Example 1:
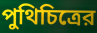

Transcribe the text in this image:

পুথিচিত্রের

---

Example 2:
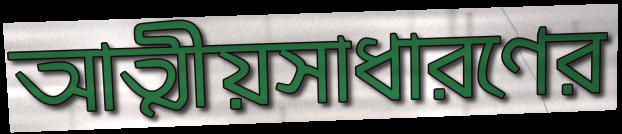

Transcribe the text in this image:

আত্মীয়সাধারণের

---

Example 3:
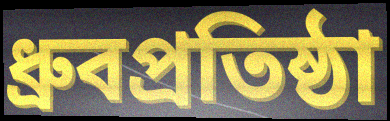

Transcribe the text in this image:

ধ্রুবপ্রতিষ্ঠা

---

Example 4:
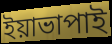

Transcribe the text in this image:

ইয়াভাপাই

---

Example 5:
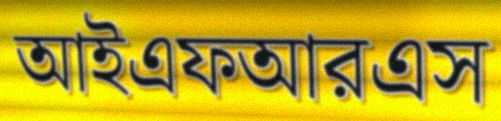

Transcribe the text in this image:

আইএফআরএস